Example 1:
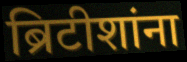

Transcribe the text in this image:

ब्रिटीशांना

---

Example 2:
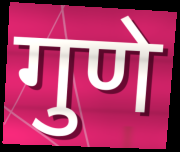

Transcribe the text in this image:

गुणे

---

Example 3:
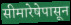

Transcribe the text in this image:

सीमारेषेपासून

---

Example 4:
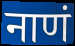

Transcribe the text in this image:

नाणं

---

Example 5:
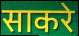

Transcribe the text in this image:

साकरे